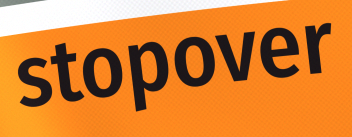
stopover